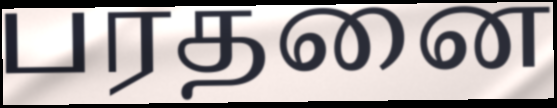
பரதனை